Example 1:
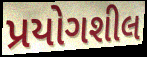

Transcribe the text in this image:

પ્રયોગશીલ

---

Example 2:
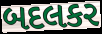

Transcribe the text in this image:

બદલકર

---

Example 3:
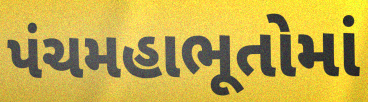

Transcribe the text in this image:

પંચમહાભૂતોમાં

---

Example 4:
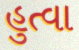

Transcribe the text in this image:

હુત્વા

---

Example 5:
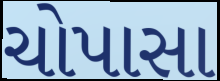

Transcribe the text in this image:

ચોપાસા